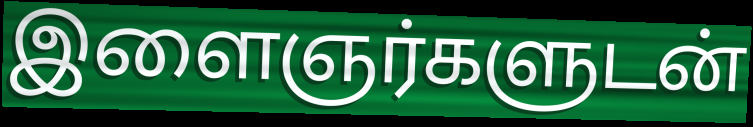
இளைஞர்களுடன்